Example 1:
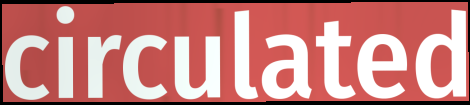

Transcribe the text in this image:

circulated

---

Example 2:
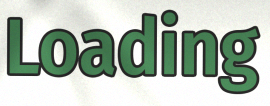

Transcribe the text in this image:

Loading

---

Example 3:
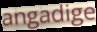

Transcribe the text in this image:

angadige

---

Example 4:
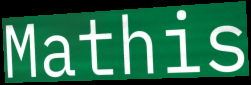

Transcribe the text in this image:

Mathis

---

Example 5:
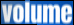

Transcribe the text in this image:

volume